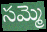
సమ్మె